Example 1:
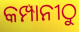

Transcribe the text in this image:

କମ୍ପାନୀଠୁ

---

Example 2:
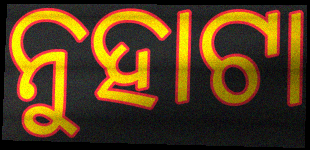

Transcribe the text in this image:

ନୁହାଟା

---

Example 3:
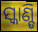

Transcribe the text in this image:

ସ୍କାଣ୍ଡି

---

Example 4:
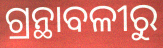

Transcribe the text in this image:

ଗ୍ରନ୍ଥାବଳୀରୁ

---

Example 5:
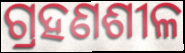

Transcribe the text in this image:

ଗ୍ରହଣଶୀଳ